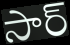
సార్